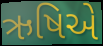
ઋષિએ